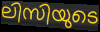
ലിസിയുടെ